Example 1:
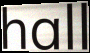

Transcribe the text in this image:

hall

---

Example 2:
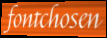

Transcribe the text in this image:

fontchosen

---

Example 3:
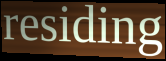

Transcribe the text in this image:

residing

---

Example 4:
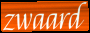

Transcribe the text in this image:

zwaard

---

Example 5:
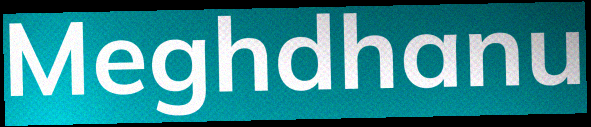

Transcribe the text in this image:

Meghdhanu